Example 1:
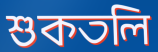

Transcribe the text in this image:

শুকতলি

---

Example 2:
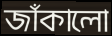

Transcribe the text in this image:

জাঁকালো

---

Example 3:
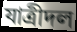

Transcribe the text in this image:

যাত্রীদল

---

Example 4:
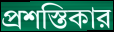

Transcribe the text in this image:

প্রশস্তিকার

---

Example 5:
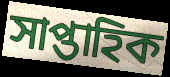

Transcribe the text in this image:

সাপ্তাহিক